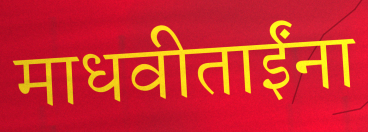
माधवीताईंना